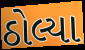
ઠોલ્યા